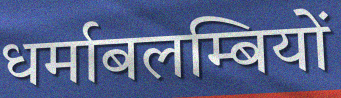
धर्माबलम्बियों